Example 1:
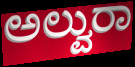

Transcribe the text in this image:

ಅಲ್ವುರಾ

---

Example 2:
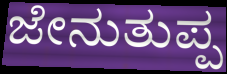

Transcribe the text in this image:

ಜೇನುತುಪ್ಪ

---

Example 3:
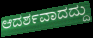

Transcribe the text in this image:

ಆದರ್ಶವಾದದ್ದು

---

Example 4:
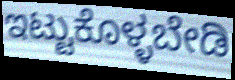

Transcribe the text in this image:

ಇಟ್ಟುಕೊಳ್ಳಬೇಡಿ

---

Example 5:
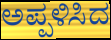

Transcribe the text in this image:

ಅಪ್ಪಳಿಸಿದ